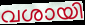
വശായി